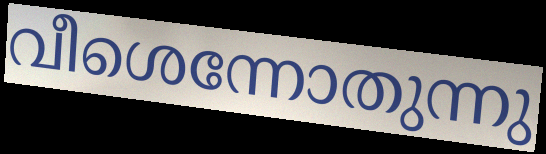
വീശെന്നോതുന്നു